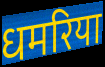
धमरिया